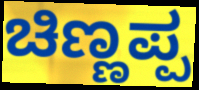
ಚಿಣ್ಣಪ್ಪ